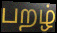
பறழ்